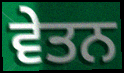
ਵੇਤਨ